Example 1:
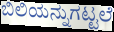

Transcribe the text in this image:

ಬಿಲಿಯನ್ನುಗಟ್ಟಲೆ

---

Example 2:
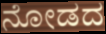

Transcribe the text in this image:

ನೋಡದ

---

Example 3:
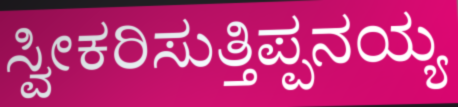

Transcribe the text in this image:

ಸ್ವೀಕರಿಸುತ್ತಿಪ್ಪನಯ್ಯ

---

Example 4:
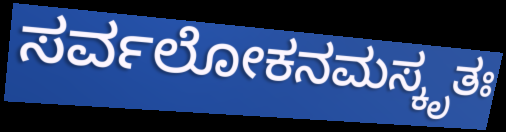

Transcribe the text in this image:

ಸರ್ವಲೋಕನಮಸ್ಕೃತಃ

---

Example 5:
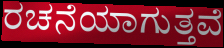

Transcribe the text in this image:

ರಚನೆಯಾಗುತ್ತವೆ